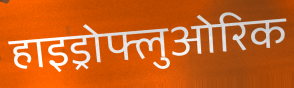
हाइड्रोफ्लुओरिक